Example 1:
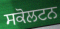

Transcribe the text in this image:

ਸਕੋਲਟਨ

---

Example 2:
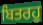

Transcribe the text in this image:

ਬਿਤਰਹੁ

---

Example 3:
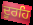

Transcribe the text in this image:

ਦੂਰਹਿ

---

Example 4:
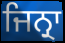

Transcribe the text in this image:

ਜਿਨ੍ਰਾ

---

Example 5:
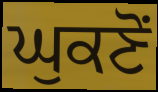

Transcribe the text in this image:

ਘੁਕਣੋਂ